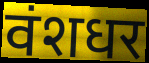
वंशधर